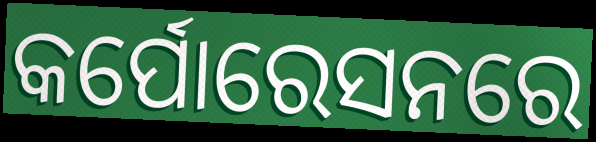
କର୍ପୋରେସନରେ